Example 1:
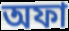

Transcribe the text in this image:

অফা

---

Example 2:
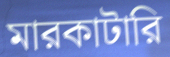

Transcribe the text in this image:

মারকাটারি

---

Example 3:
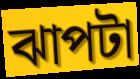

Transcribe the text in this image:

ঝাপটা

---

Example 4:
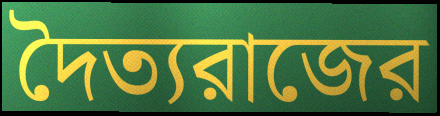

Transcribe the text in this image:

দৈত্যরাজের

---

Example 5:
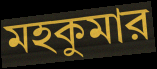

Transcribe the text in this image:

মহকুমার